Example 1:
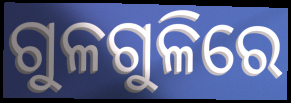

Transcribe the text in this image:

ଗୁଳଗୁଳିରେ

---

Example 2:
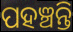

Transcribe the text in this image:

ପହଞ୍ଚନ୍ତି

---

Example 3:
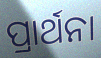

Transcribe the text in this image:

ପ୍ରାର୍ଥନା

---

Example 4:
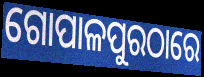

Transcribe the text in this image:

ଗୋପାଳପୁରଠାରେ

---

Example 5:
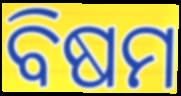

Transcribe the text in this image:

ବିଷମ